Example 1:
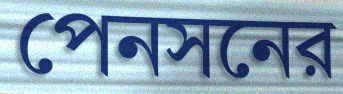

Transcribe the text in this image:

পেনসনের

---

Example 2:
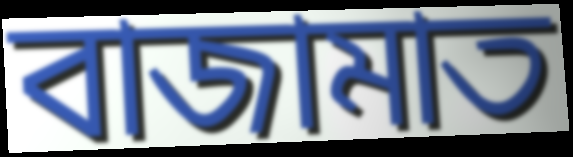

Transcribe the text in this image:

বাজামাত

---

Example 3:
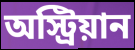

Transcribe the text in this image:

অস্ট্রিয়ান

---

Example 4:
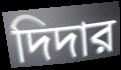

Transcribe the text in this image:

দিদার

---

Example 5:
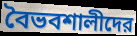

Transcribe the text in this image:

বৈভবশালীদের